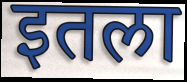
इतला